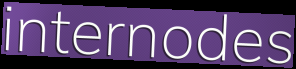
internodes